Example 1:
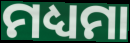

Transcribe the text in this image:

ମଧ୍ୟମା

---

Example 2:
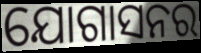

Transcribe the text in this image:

ଯୋଗାସନର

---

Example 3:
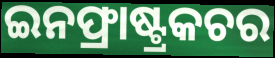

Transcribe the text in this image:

ଇନଫ୍ରାଷ୍ଟ୍ରକଚର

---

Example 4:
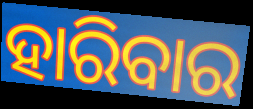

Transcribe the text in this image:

ହାରିବାର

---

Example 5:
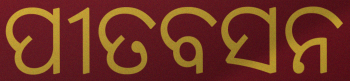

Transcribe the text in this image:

ପୀତବସନ